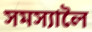
সমস্যালৈ